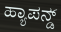
ಹ್ಯಾಪನ್ಡ್